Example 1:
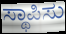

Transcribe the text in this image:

ಸ್ಥಾಪಿಸು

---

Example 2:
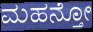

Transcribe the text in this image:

ಮಹನ್ತೋ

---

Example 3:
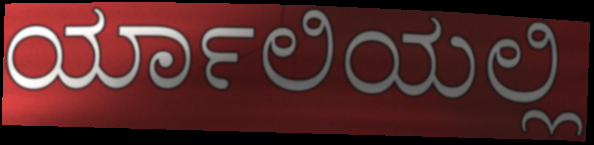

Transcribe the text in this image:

ರ್ಯಾಲಿಯಲ್ಲಿ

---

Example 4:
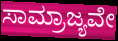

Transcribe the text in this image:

ಸಾಮ್ರಾಜ್ಯವೇ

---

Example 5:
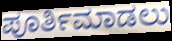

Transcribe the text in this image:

ಪೂರ್ತಿಮಾಡಲು